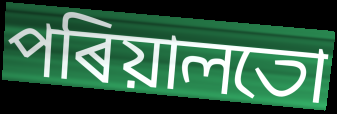
পৰিয়ালতো